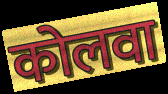
कोलवा